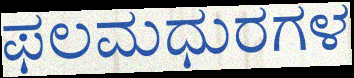
ಫಲಮಧುರಗಳ